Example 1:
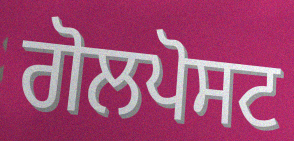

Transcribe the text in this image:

ਗੋਲਪੋਸਟ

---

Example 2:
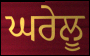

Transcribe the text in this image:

ਘਰੇਲੂ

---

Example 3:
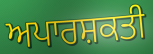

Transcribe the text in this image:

ਅਪਾਰਸ਼ਕਤੀ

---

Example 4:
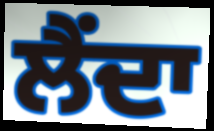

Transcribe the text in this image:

ਲੈਂਦਾ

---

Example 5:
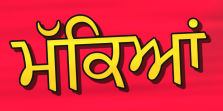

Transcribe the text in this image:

ਮੱਕਿਆਂ